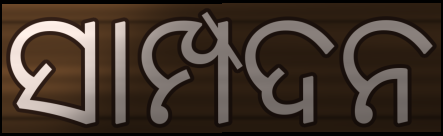
ସାମ୍ପଦନ